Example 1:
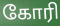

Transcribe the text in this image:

கோரி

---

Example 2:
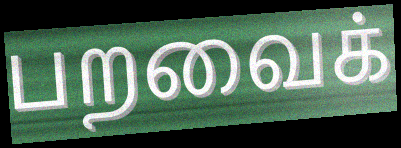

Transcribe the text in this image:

பறவைக்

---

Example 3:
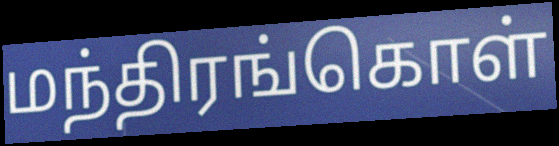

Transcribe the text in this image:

மந்திரங்கொள்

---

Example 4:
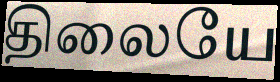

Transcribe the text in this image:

திலையே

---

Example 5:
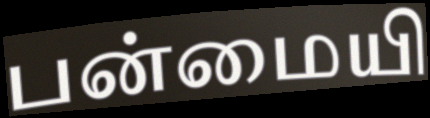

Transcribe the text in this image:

பன்மையி